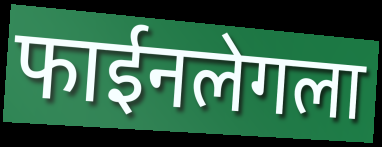
फाईनलेगला